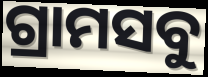
ଗ୍ରାମସବୁ